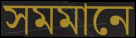
সমমানে